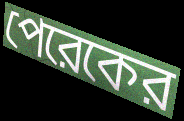
পেরেকের